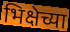
भिक्षेच्या